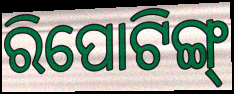
ରିପୋଟିଙ୍ଗ୍